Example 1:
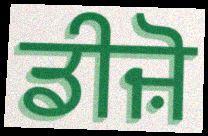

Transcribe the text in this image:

ਡੀਜ਼ੋ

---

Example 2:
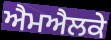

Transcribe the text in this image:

ਐਮਐਲਕੇ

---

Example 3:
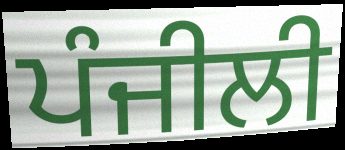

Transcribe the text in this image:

ਪੰਜੀਲੀ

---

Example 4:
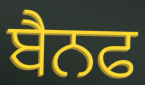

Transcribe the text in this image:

ਬੈਨਫ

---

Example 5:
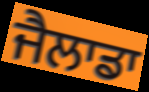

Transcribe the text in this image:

ਜੈਲਾਡਾ